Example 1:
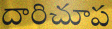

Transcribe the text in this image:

దారిచూప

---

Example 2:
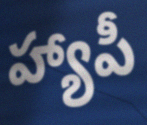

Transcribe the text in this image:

హ్యాపీ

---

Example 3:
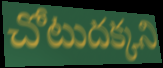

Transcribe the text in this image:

చోటుదక్కని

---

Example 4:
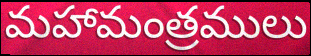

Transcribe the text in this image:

మహామంత్రములు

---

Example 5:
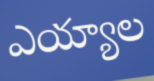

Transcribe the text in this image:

ఎయ్యాల